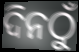
ଦିନଠୁଁ